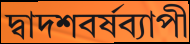
দ্বাদশবর্ষব্যাপী